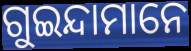
ଗୁଇନ୍ଦାମାନେ